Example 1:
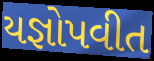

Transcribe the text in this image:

યજ્ઞોપવીત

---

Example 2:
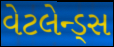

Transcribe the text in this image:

વેટલેન્ડ્સ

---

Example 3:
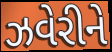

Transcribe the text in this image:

ઝવેરીને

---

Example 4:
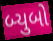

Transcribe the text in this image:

બ્યુબો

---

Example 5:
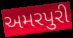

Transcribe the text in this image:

અમરપુરી